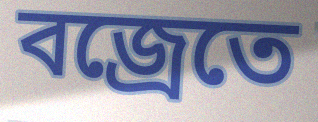
বজ্রেতে